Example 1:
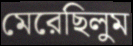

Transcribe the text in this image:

মেরেছিলুম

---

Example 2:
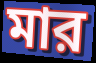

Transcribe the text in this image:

মার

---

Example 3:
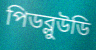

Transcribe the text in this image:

পিডব্লুউডি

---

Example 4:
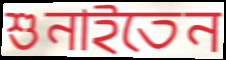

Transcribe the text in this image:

শুনাইতেন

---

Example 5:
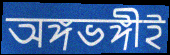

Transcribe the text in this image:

অঙ্গভঙ্গীই